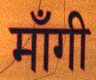
माँगी